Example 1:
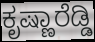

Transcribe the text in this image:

ಕೃಷ್ಣಾರೆಡ್ಡಿ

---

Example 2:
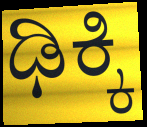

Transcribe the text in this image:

ಢಿಕ್ಕಿ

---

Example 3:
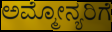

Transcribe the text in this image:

ಅಮ್ಮೋನ್ಯರಿಗೆ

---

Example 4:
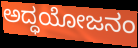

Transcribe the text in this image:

ಅದ್ಧಯೋಜನಂ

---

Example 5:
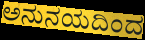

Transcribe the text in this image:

ಅನುನಯದಿಂದ